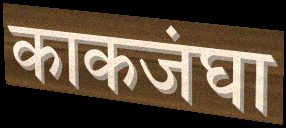
काकजंघा